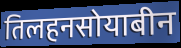
तिलहनसोयाबीन